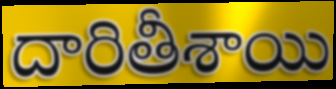
దారితీశాయి